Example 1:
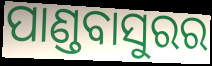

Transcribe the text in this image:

ପାଣ୍ଡବାସୁରର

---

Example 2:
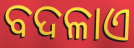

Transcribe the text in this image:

ବଦଳାଏ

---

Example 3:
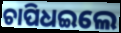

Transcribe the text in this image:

ଚାପିଧଇଲେ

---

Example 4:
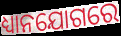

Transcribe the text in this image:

ଧ୍ୟାନଯୋଗରେ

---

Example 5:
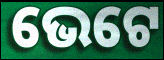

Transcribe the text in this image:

ଭେଟେ